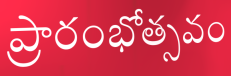
ప్రారంభోత్సవం